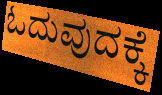
ಓದುವುದಕ್ಕೆ